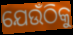
ଯେଉଁଠିକୁ